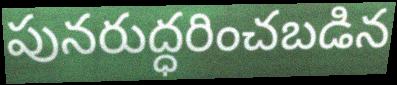
పునరుద్ధరించబడిన